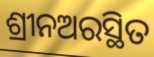
ଶ୍ରୀନଅରସ୍ଥିତ